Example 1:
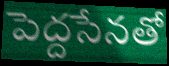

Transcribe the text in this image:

పెద్దసేనతో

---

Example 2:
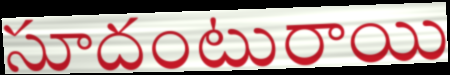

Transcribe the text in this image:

సూదంటురాయి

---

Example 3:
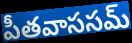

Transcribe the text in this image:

పీతవాససమ్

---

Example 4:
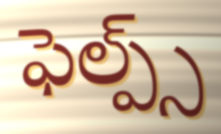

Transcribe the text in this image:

ఫెల్ప్స్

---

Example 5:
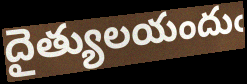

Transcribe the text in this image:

దైత్యులయందుఁ